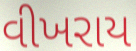
વીખરાય